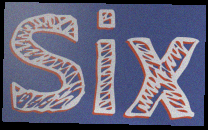
Six